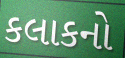
કલાકનો